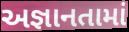
અજ્ઞાનતામાં